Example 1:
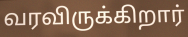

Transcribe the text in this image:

வரவிருக்கிறார்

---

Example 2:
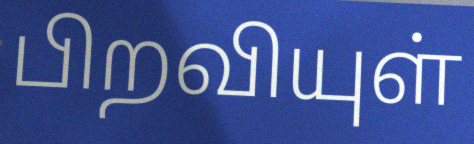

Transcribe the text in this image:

பிறவியுள்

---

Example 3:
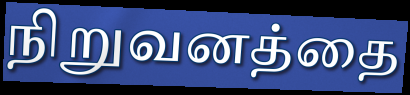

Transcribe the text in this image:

நிறுவனத்தை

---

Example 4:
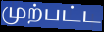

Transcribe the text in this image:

முற்பட்ட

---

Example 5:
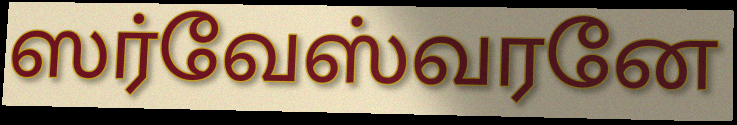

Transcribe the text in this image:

ஸர்வேஸ்வரனே